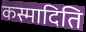
कस्मादिति